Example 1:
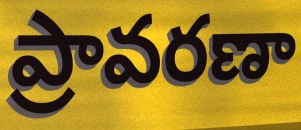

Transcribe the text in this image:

ప్రావరణా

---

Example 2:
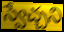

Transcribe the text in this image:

స్వేచ్చని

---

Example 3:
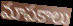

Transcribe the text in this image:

మాపకాలు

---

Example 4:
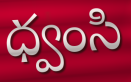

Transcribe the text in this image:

ధ్వంసి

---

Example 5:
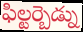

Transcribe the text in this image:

ఫిల్టర్బెడ్ను